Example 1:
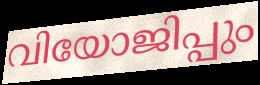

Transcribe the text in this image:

വിയോജിപ്പും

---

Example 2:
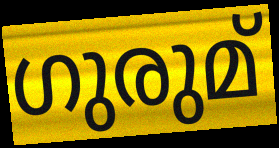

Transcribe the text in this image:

ഗുരുമ്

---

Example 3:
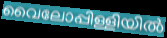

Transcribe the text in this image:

വൈലോപ്പിള്ളിയിൽ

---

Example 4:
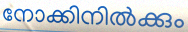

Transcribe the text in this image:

നോക്കിനിൽക്കും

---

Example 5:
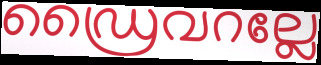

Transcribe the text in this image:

ഡ്രൈവറല്ലേ